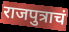
राजपुत्राचं